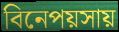
বিনেপয়সায়